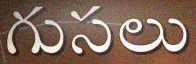
గుసలు